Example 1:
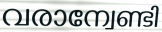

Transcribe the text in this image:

വരാന്വേണ്ടി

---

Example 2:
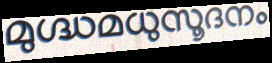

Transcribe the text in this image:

മുഗ്ദ്ധമധുസൂദനം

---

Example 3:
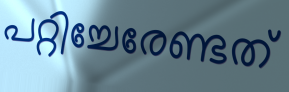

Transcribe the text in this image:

പറ്റിച്ചേരേണ്ടത്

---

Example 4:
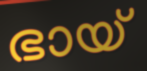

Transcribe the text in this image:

ഭായ്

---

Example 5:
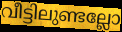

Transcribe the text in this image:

വീട്ടിലുണ്ടല്ലോ